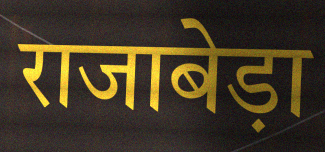
राजाबेड़ा